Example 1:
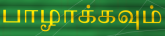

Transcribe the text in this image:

பாழாக்கவும்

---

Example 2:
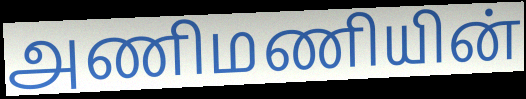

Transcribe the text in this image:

அணிமணியின்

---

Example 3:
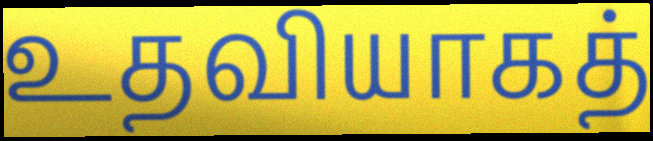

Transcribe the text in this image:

உதவியாகத்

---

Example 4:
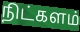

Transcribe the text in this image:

நிட்களம்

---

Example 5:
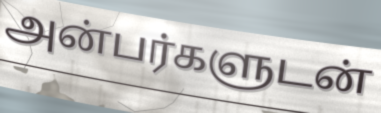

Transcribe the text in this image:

அன்பர்களுடன்